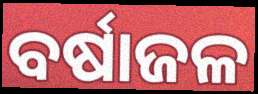
ବର୍ଷାଜଳ